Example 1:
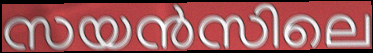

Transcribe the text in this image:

സയൻസിലെ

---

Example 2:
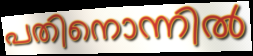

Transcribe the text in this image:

പതിനൊന്നിൽ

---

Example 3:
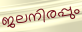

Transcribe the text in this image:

ജലനിരപ്പും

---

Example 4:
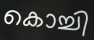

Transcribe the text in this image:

കൊച്ചി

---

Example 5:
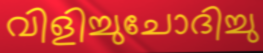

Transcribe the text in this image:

വിളിച്ചുചോദിച്ചു